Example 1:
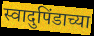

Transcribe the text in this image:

स्वादुपिंडाच्या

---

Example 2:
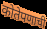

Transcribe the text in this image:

कोतेपणाची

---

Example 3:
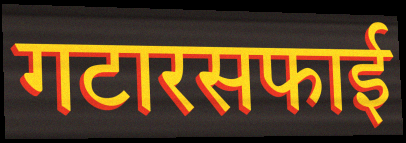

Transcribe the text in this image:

गटारसफाई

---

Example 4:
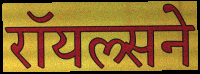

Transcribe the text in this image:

रॉयल्सने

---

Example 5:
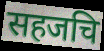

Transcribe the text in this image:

सहजचि